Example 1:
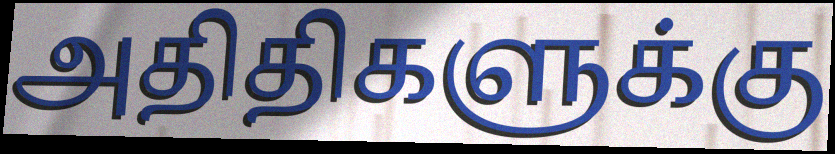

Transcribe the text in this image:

அதிதிகளுக்கு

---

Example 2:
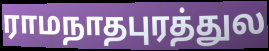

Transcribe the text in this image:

ராமநாதபுரத்துல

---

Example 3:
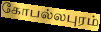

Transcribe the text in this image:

கோபல்லபுரம்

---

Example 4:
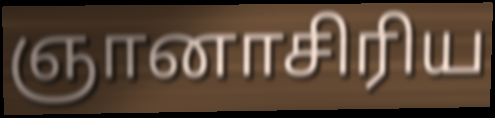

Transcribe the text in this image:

ஞானாசிரிய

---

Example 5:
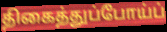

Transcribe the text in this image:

திகைத்துப்போய்ப்